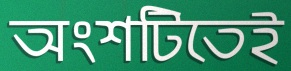
অংশটিতেই